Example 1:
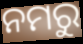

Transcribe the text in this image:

ନମରୁ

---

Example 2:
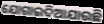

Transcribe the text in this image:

ଯୋଗାଇଦିଆଯାଉଛି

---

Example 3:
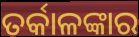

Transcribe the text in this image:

ତର୍କାଳଙ୍କାର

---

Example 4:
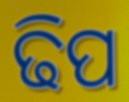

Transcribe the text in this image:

ଢିପ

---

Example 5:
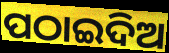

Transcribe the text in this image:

ପଠାଇଦିଅ